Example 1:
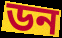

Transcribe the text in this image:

ডন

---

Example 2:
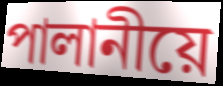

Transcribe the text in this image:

পালানীয়ে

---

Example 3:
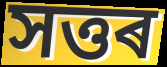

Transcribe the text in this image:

সত্তৰ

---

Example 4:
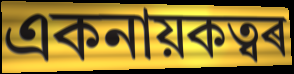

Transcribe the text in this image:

একনায়কত্বৰ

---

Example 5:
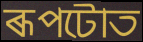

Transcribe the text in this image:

ৰূপটোত